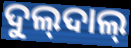
ଦୁଲ୍‍ଦାଲ୍